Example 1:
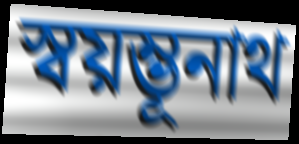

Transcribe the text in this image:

স্বয়ম্ভূনাথ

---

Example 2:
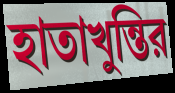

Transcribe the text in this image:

হাতাখুন্তির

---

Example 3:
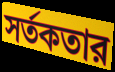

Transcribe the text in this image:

সর্তকতার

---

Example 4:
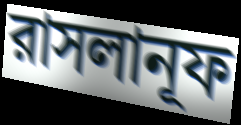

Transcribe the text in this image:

রাসলানূফ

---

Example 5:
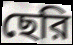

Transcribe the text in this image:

ছেরি